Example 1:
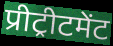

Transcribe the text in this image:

प्रीट्रीटमेंट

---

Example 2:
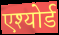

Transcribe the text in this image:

एश्योर्ड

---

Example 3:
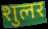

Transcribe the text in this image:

शुलर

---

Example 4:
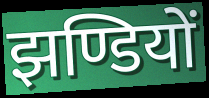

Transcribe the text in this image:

झण्डियों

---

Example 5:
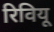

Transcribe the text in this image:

रिवियू